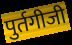
पुर्तगीजी